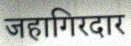
जहागिरदार